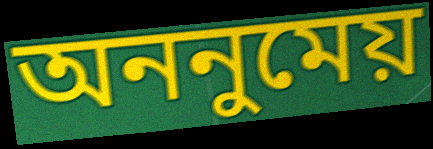
অননুমেয়